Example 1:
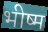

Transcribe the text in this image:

भीष्म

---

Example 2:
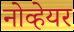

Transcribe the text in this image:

नोव्हेयर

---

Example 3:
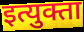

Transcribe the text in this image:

इत्युक्ता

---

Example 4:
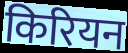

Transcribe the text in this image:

किरियन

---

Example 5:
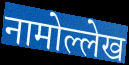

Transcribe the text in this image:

नामोल्लेख